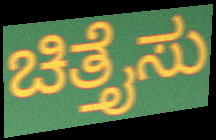
ಚಿತ್ತೈಸು